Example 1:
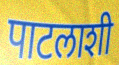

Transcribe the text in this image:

पाटलाशी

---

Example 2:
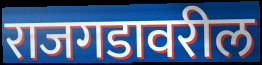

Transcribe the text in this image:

राजगडावरील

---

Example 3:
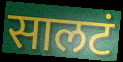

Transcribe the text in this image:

सालटं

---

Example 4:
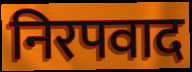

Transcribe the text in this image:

निरपवाद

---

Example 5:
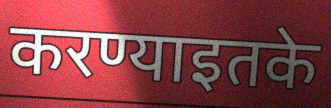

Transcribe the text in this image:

करण्याइतके